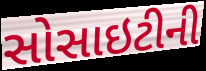
સોસાઇટીની